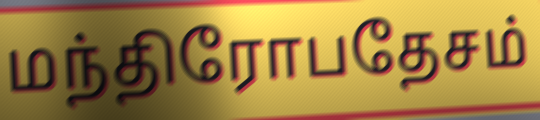
மந்திரோபதேசம்